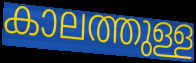
കാലത്തുള്ള